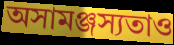
অসামঞ্জস্যতাও